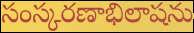
సంస్కరణాభిలాషను